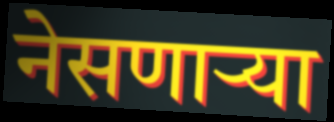
नेसणाऱ्या